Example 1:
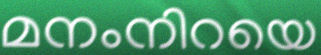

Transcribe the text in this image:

മനംനിറയെ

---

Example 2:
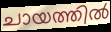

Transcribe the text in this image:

ചായത്തിൽ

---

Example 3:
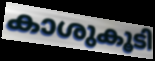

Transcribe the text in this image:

കാശുകൂടി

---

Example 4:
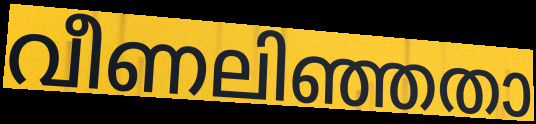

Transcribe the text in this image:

വീണലിഞ്ഞതാ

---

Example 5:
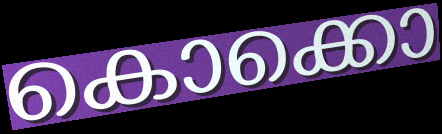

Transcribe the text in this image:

കൊക്കൊ